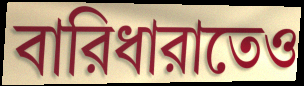
বারিধারাতেও